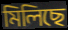
মিলিছে